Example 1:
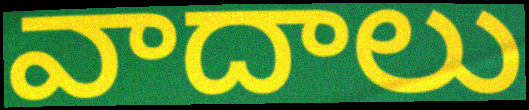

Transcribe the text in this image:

వాదాలు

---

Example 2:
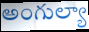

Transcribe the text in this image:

అంగుల్యా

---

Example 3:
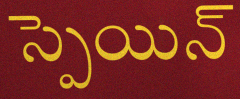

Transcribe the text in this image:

స్పెయిన్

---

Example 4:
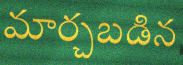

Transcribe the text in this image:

మార్చబడిన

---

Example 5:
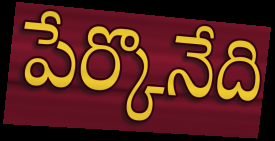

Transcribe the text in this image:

పేర్కొనేది